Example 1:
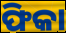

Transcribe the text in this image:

ଫିକା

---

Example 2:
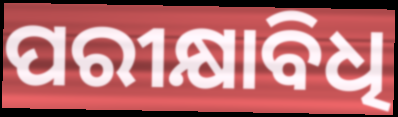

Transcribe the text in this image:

ପରୀକ୍ଷାବିଧି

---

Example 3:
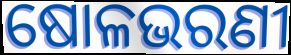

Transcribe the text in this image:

ଷୋଳଭରଣୀ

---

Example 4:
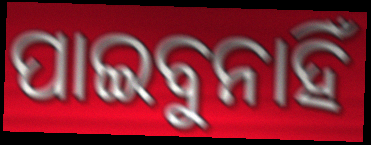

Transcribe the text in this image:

ପାଇବୁନାହିଁ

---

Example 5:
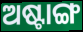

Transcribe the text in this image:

ଅଷ୍ଟାଙ୍ଗ